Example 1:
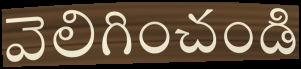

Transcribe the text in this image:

వెలిగించండి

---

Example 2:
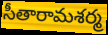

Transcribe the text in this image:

సీతారామశర్మ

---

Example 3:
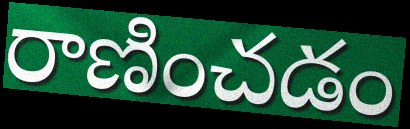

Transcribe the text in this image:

రాణించడం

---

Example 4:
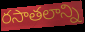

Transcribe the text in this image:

రసాతలాన్ని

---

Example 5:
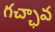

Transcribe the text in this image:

గచ్ఛావ